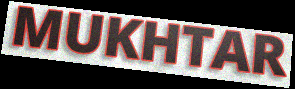
MUKHTAR